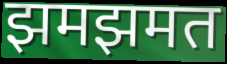
झमझमत